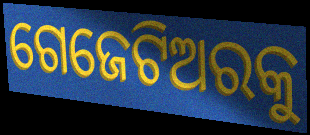
ଗେଜେଟିଅରକୁ